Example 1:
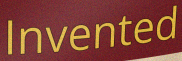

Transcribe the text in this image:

Invented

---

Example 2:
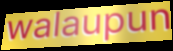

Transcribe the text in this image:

walaupun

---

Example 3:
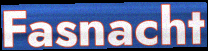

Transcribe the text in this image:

Fasnacht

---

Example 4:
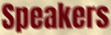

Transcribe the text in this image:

Speakers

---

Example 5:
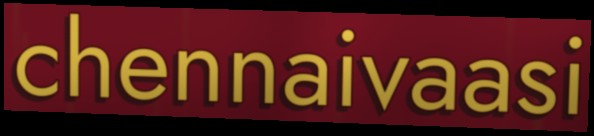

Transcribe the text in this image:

chennaivaasi